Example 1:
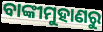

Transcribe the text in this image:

ବାଙ୍କୀମୁହାଣରୁ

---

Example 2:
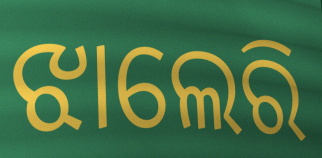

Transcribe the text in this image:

ଝାଲେରି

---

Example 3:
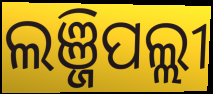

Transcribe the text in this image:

ଲଞ୍ଜିପଲ୍ଲୀ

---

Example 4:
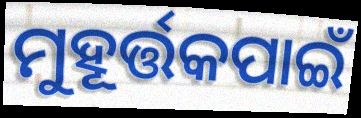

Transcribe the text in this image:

ମୁହୂର୍ତ୍ତକପାଇଁ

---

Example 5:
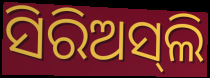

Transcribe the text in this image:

ସିରିଅସ୍‌ଲି